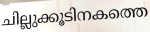
ചില്ലുക്കൂടിനകത്തെ